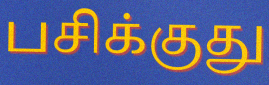
பசிக்குது